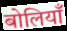
बोलियाँ